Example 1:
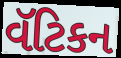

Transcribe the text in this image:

વૅટિકન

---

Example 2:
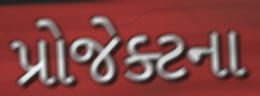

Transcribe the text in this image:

પ્રોજેક્ટના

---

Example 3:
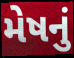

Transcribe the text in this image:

મેષનું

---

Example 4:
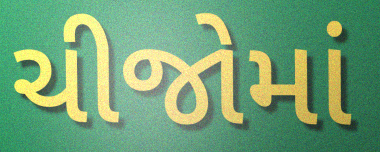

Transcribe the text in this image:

ચીજોમાં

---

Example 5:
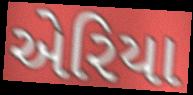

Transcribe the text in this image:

એરિયા